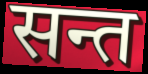
सन्‍त